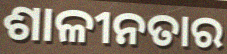
ଶାଳୀନତାର